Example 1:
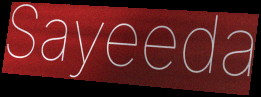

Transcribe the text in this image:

Sayeeda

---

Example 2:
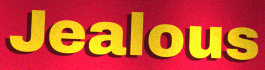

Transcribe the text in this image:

Jealous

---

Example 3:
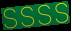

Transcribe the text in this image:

ssss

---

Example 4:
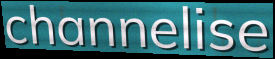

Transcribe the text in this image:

channelise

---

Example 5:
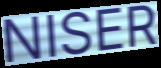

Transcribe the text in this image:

NISER